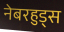
नेबरहुड्स